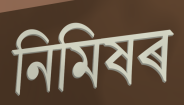
নিমিষৰ